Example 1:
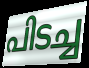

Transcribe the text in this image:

പിടച്ച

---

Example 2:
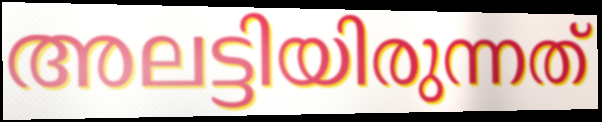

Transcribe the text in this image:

അലട്ടിയിരുന്നത്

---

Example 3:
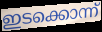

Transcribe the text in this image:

ഇടക്കൊന്ന്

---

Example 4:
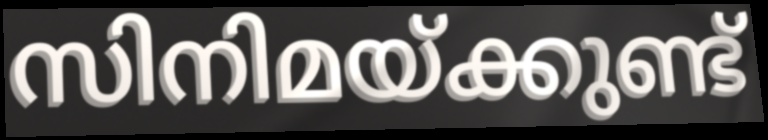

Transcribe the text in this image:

സിനിമയ്ക്കുണ്ട്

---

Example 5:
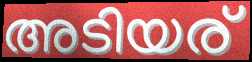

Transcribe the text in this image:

അടിയര്